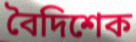
বৈদিশেক